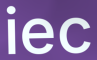
iec